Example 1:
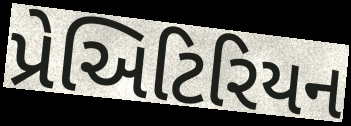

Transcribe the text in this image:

પ્રેઅિટિરિયન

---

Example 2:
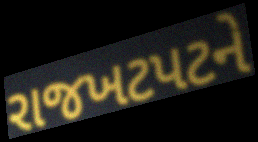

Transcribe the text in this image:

રાજખટપટને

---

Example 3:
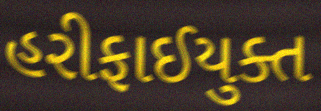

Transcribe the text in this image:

હરીફાઈયુક્ત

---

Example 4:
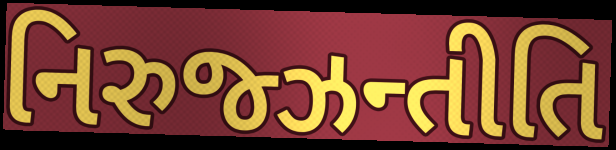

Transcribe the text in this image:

નિરુજ્ઝન્તીતિ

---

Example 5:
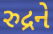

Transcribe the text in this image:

રુદ્રને